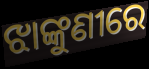
ଝାଙ୍କୁଣୀରେ